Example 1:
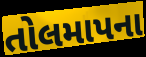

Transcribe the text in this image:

તોલમાપના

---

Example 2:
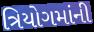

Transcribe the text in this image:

ત્રિયોગમાંની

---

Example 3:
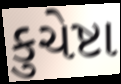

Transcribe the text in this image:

કુચેષ્ટા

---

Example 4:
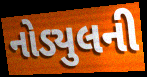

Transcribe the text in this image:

નોડ્યુલની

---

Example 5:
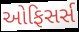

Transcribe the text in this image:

ઓફિસર્સ